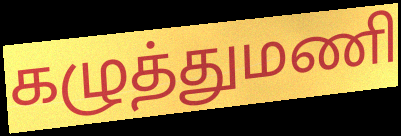
கழுத்துமணி